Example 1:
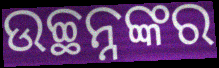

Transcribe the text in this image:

ଉଚ୍ଛନ୍ନଙ୍କର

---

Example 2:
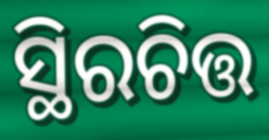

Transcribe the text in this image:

ସ୍ଥିରଚିତ୍ତ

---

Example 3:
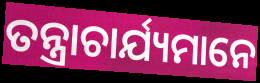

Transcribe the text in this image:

ତନ୍ତ୍ରାଚାର୍ଯ୍ୟମାନେ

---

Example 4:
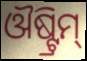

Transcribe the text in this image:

ଔଷ୍ଟ୍ରିମ୍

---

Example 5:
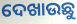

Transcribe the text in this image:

ଦେଖାଉଛୁ